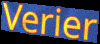
Verier